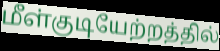
மீள்குடியேற்றத்தில்